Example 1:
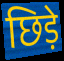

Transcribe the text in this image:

छिड़े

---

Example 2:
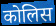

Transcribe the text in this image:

कोलिस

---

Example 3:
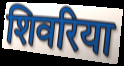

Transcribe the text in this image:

शिवरिया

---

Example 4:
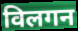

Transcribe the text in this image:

विलगन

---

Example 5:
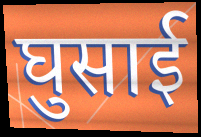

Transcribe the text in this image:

घुसाई